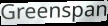
Greenspan